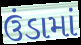
ઉંડામાં